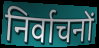
निर्वाचनों